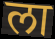
ला